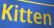
Kitten